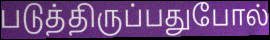
படுத்திருப்பதுபோல்